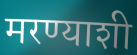
मरण्याशी